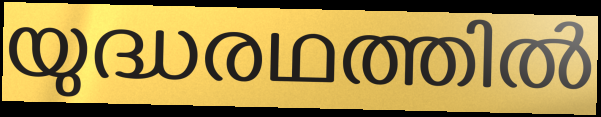
യുദ്ധരഥത്തിൽ